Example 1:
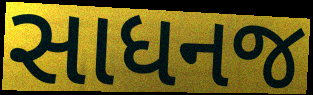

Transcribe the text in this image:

સાધનજ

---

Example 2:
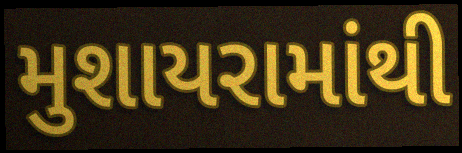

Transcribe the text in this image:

મુશાયરામાંથી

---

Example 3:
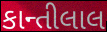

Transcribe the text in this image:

કાન્તીલાલ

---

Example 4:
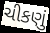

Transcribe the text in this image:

ચીકણું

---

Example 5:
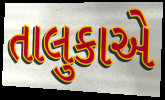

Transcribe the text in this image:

તાલુકાએ